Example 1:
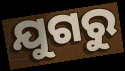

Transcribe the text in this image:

ଯୁଗରୁ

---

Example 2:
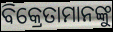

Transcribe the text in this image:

ବିକ୍ରେତାମାନଙ୍କୁ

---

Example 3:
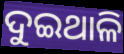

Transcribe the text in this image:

ଦୁଇଥାଳି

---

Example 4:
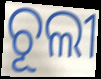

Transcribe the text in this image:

ଚୂଲୀ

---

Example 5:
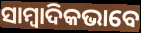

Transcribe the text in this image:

ସାମ୍ୱାଦିକଭାବେ